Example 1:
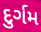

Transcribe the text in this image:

દુર્ગમ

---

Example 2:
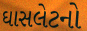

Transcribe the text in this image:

ઘાસલેટનો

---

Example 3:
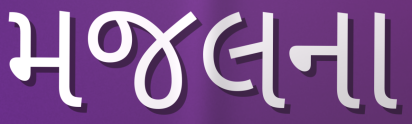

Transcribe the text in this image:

મજલના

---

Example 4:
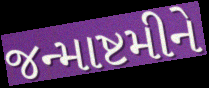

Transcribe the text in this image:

જન્માષ્ટમીને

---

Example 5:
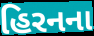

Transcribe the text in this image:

હિરનના